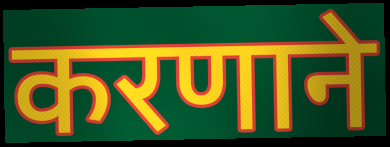
करणाने